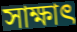
সাক্ষাৎ